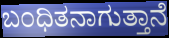
ಬಂಧಿತನಾಗುತ್ತಾನೆ